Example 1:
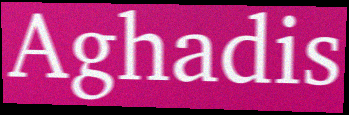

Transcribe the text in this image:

Aghadis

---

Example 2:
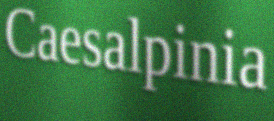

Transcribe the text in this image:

Caesalpinia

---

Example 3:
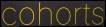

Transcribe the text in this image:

cohorts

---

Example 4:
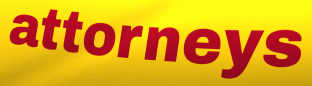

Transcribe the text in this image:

attorneys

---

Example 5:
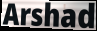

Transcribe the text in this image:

Arshad